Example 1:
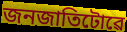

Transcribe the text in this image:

জনজাতিটোৱে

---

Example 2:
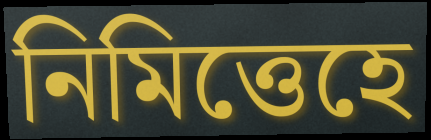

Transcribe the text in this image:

নিমিত্তেহে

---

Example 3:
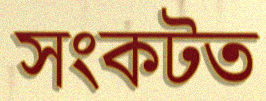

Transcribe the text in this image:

সংকটত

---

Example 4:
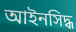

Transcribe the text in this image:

আইনসিদ্ধ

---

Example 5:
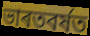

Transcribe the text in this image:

ভাৰতবৰ্ষত